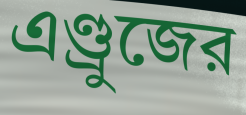
এণ্ড্রুজের